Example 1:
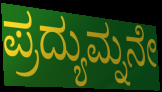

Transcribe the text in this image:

ಪ್ರದ್ಯುಮ್ನನೇ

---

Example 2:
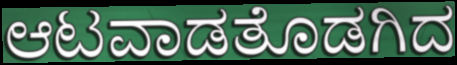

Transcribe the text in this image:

ಆಟವಾಡತೊಡಗಿದ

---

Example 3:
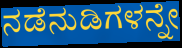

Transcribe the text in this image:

ನಡೆನುಡಿಗಳನ್ನೇ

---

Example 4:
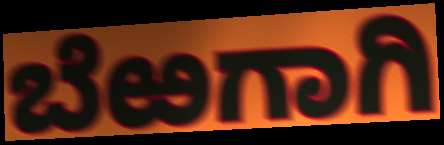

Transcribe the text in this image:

ಬೆಱಗಾಗಿ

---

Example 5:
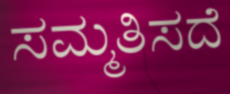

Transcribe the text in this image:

ಸಮ್ಮತಿಸದೆ